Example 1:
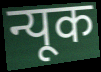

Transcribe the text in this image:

न्यूक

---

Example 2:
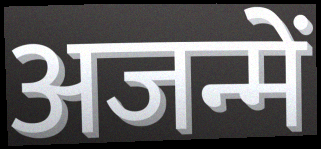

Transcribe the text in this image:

अजन्में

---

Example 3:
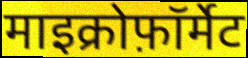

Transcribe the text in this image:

माइक्रोफ़ॉर्मेट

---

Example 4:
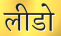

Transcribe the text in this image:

लीडो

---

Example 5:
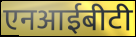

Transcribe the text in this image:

एनआईबीटी